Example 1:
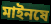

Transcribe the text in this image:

মাইনষে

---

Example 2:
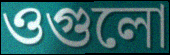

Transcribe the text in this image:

ওগুলো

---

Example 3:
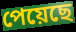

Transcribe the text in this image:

পেয়েছে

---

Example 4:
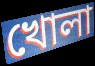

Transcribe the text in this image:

খোলা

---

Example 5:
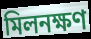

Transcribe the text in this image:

মিলনক্ষণ